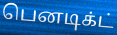
பெனடிக்ட்